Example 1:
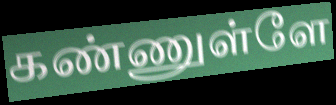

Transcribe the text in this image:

கண்ணுள்ளே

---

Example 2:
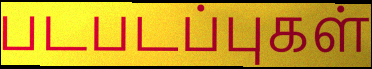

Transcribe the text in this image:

படபடப்புகள்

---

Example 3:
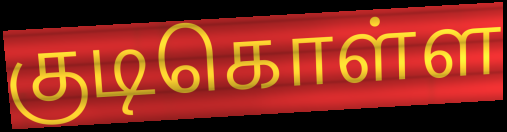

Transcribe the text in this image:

குடிகொள்ள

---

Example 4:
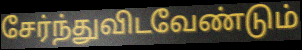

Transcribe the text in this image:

சேர்ந்துவிடவேண்டும்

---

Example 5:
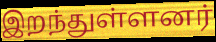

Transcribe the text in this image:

இறந்துள்ளனர்